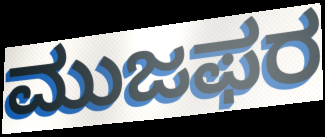
ಮುಜಫರ